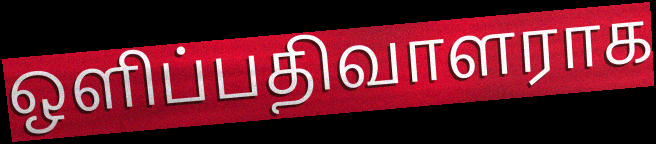
ஒளிப்பதிவாளராக